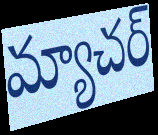
మ్యాచర్